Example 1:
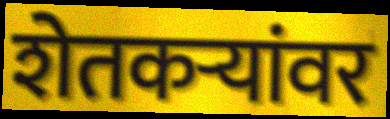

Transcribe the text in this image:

शेतकऱ्यांवर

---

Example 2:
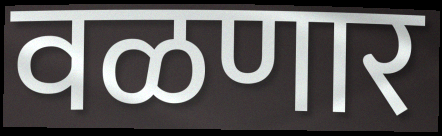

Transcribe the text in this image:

वळणार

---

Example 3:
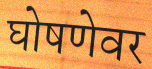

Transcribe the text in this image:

घोषणेवर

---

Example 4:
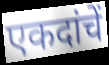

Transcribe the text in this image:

एकदांचें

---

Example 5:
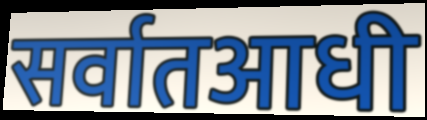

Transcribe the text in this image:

सर्वातआधी